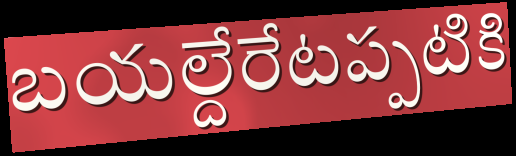
బయల్దేరేటప్పటికి